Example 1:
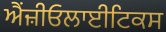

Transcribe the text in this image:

ਐਂਜ਼ੀਓਲਾਈਟਿਕਸ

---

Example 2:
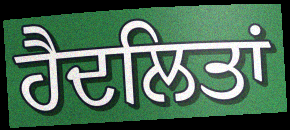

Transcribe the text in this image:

ਹੈਦਲਿਤਾਂ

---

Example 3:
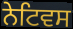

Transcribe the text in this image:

ਨੇਟਿਵਸ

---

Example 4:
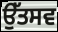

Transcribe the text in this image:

ਉੱਤਸਵ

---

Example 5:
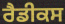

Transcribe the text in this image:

ਰੈਡੀਕਸ